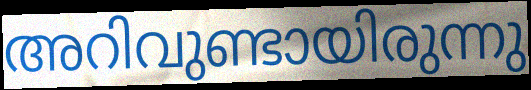
അറിവുണ്ടായിരുന്നു